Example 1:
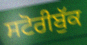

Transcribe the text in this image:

ਸਟੋਰੀਬੁੱਕ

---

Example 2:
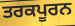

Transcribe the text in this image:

ਤਰਕਪੂਰਨ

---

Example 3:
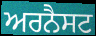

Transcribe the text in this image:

ਅਰਨੈਸਟ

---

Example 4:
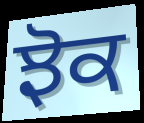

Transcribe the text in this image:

ਝੋਕ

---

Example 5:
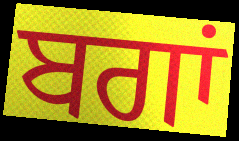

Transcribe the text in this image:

ਬਗਾਂ